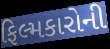
ફિલ્મકારોની